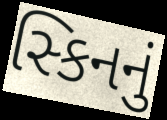
સ્કિનનું